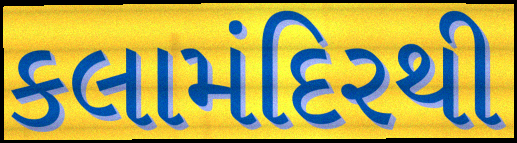
કલામંદિરથી